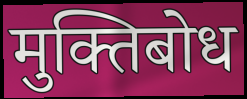
मुक्तिबोध